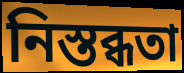
নিস্তব্ধতা